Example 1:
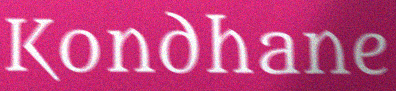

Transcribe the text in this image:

Kondhane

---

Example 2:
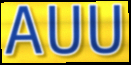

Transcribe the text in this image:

AUU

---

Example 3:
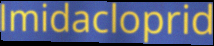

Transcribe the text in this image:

Imidacloprid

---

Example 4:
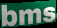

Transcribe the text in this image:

bms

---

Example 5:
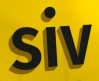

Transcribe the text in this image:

siv